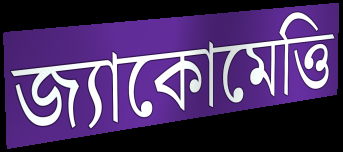
জ্যাকোমেত্তি